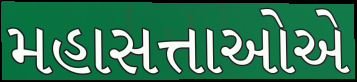
મહાસત્તાઓએ